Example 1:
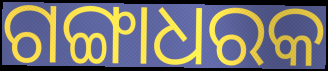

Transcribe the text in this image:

ଗଙ୍ଗାଧରକ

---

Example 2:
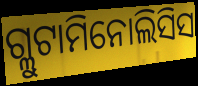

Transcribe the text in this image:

ଗ୍ଲୁଟାମିନୋଲିସିସ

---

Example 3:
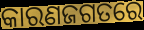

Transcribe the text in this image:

କାରଣଜଗତରେ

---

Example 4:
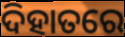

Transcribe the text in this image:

ଦିହାତରେ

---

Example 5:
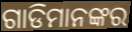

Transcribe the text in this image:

ଗାଡିମାନଙ୍କର